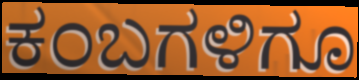
ಕಂಬಗಳಿಗೂ